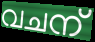
വചന്